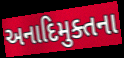
અનાદિમુક્તના